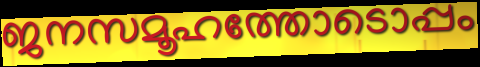
ജനസമൂഹത്തോടൊപ്പം